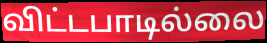
விட்டபாடில்லை